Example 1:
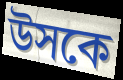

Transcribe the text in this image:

উসকে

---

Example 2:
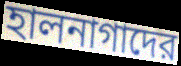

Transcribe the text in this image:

হালনাগাদের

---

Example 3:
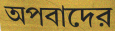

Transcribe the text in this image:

অপবাদের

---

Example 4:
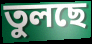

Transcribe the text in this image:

তুলছে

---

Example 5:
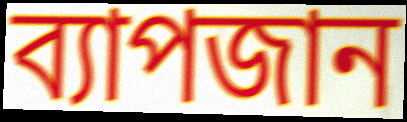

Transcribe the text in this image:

ব্যাপজান